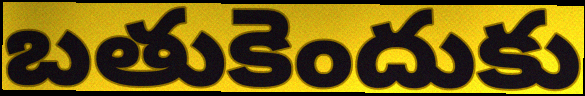
బతుకెందుకు